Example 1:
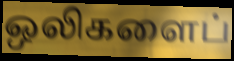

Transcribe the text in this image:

ஒலிகளைப்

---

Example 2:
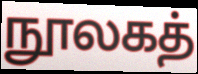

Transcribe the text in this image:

நூலகத்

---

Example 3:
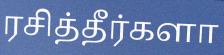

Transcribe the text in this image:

ரசித்தீர்களா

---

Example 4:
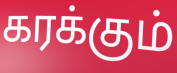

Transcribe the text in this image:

கரக்கும்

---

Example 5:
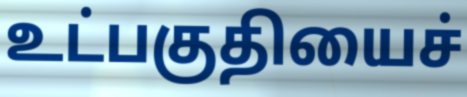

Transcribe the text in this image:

உட்பகுதியைச்